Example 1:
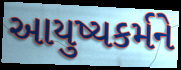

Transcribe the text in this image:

આયુષ્યકર્મને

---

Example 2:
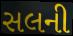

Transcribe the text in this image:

સલની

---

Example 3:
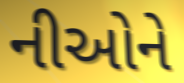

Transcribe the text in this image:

નીઓને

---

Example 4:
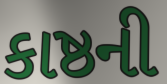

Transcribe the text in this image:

કાષ્ઠની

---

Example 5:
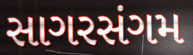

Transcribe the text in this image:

સાગરસંગમ